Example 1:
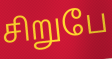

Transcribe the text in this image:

சிறுபே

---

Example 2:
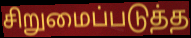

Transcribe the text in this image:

சிறுமைப்படுத்த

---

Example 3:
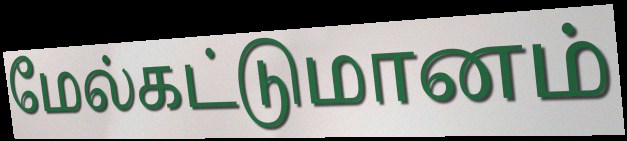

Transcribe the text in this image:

மேல்கட்டுமானம்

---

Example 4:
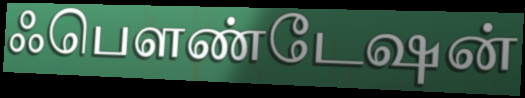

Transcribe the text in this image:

ஃபௌண்டேஷன்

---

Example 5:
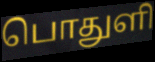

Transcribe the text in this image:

பொதுளி